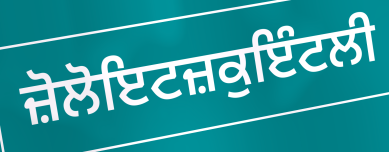
ਜ਼ੋਲੋਇਟਜ਼ਕੁਇੰਟਲੀ